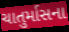
ચાતુર્માસના